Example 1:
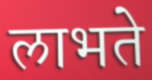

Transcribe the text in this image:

लाभते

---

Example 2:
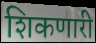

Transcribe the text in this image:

शिकणारी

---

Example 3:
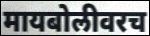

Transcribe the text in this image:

मायबोलीवरच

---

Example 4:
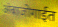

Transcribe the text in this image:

अंबाजोगाईत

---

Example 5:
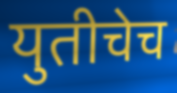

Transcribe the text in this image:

युतीचेच